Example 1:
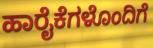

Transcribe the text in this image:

ಹಾರೈಕೆಗಳೊಂದಿಗೆ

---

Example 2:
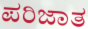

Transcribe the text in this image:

ಪರಿಜಾತ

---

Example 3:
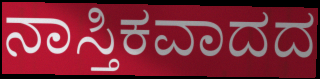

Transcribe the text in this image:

ನಾಸ್ತಿಕವಾದದ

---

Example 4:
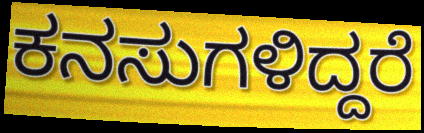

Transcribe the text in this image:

ಕನಸುಗಳಿದ್ದರೆ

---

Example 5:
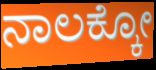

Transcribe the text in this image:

ನಾಲಕ್ಕೋ